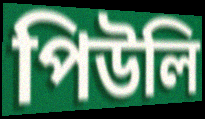
পিউলি